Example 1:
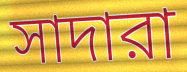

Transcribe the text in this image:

সাদারা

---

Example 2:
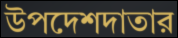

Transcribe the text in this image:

উপদেশদাতার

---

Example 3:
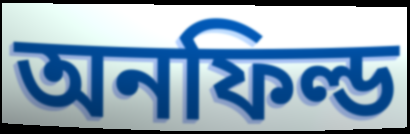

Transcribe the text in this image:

অনফিল্ড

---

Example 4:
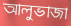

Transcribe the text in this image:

আলুভাজা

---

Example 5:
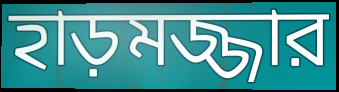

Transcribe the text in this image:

হাড়মজ্জার